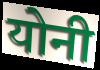
योनी